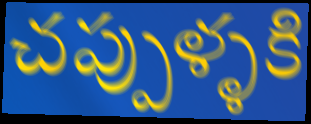
చప్పుళ్ళకి